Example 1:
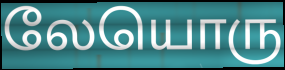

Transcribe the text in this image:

லேயொரு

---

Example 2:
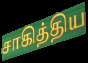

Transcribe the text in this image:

சாகித்திய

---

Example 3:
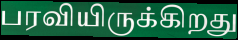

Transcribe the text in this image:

பரவியிருக்கிறது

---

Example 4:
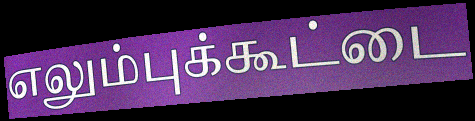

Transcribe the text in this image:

எலும்புக்கூட்டை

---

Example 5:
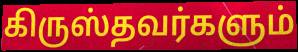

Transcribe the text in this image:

கிருஸ்தவர்களும்